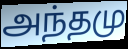
அந்தமு